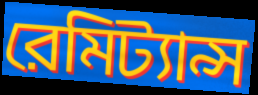
রেমিট্যান্স